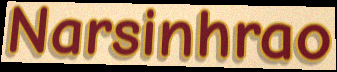
Narsinhrao